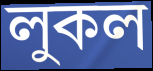
লুকল